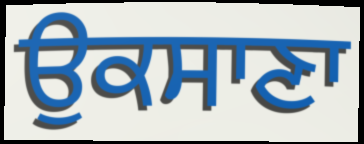
ਉਕਸਾਣਾ